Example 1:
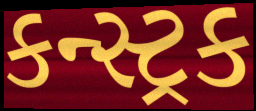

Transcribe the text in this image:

કન્સ્ટ્રક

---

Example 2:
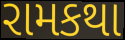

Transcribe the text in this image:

રામકથા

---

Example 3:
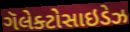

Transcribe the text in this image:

ગૅલેક્ટોસાઇડેઝ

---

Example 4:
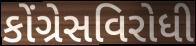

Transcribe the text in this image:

કોંગ્રેસવિરોધી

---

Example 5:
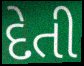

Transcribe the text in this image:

દેતી